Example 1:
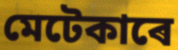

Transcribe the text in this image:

মেটেকাৰে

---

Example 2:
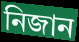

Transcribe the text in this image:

নিজান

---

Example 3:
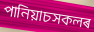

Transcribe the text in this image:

পানিয়াচসকলৰ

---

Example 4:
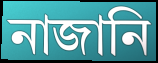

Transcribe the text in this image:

নাজানি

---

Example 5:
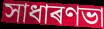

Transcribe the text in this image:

সাধাৰণভা